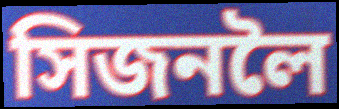
সিজনলৈ